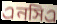
এনসিএ